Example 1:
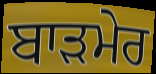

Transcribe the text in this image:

ਬਾੜਮੇਰ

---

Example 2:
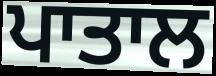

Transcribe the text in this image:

ਪਾਤਾਲ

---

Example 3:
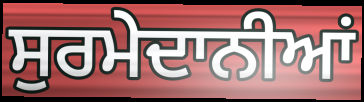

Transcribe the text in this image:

ਸੁਰਮੇਦਾਨੀਆਂ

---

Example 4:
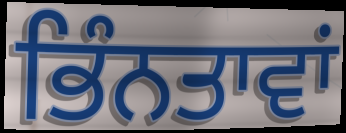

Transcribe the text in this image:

ਭਿੰਨਤਾਵਾਂ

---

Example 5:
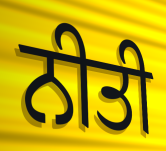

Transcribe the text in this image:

ਨੀਤੀ